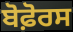
ਬੋਫ਼ੋਰਸ